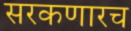
सरकणारच